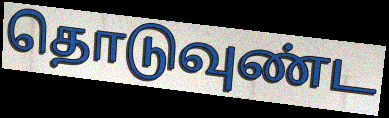
தொடுவுண்ட